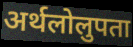
अर्थलोलुपता